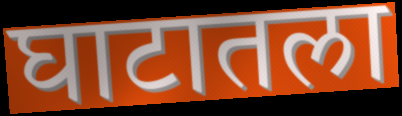
घाटातला